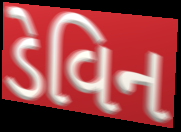
ડેવિન